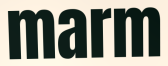
marm